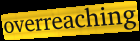
overreaching